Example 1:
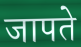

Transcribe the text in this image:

जापते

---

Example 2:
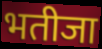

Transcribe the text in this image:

भतीजा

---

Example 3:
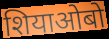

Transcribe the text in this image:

शियाओबो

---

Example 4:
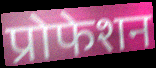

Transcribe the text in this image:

प्रोफेशन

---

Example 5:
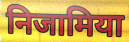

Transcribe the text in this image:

निजामिया